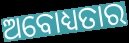
ଅବୋଧ୍ୟତାର